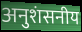
अनुशंसनीय